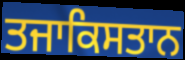
ਤਜਾਕਿਸਤਾਨ